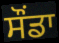
ਸੌਂਡਾ